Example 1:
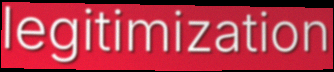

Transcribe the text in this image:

legitimization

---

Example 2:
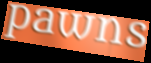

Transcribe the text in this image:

pawns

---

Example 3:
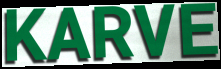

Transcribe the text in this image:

KARVE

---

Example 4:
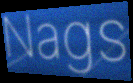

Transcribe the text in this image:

Nags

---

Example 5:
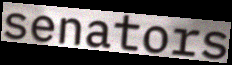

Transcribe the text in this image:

senators